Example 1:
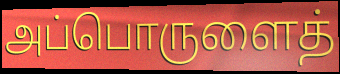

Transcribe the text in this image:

அப்பொருளைத்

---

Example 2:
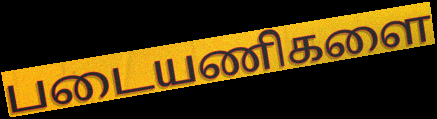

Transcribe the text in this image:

படையணிகளை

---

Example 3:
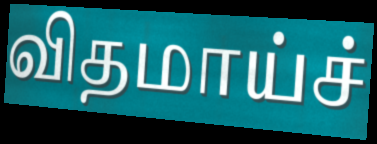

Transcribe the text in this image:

விதமாய்ச்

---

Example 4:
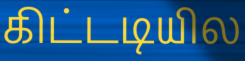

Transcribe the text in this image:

கிட்டடியில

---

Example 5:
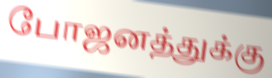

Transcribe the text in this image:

போஜனத்துக்கு